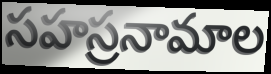
సహస్రనామాల